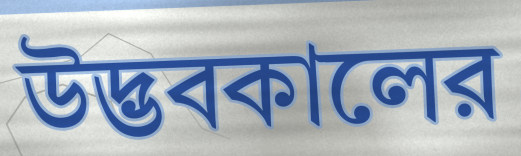
উদ্ভবকালের